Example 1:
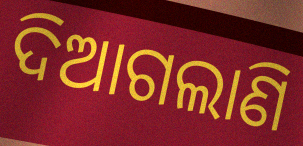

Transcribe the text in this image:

ଦିଆଗଲାଣି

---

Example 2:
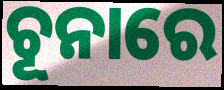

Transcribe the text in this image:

ଚୂନାରେ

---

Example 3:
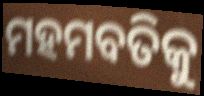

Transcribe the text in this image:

ମହମବତିକୁ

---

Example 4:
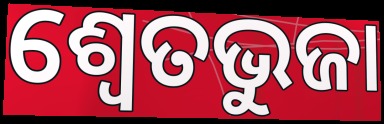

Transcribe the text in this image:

ଶ୍ଵେତଭୁଜା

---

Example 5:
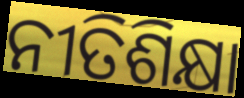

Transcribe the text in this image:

ନୀତିଶିକ୍ଷା